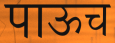
पाऊच